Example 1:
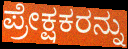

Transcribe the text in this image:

ಪ್ರೇಕ್ಷಕರನ್ನು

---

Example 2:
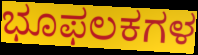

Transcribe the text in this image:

ಭೂಫಲಕಗಳ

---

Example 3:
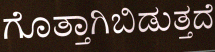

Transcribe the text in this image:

ಗೊತ್ತಾಗಿಬಿಡುತ್ತದೆ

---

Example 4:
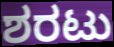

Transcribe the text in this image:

ಶರಟು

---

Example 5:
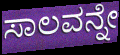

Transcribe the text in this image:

ಸಾಲವನ್ನೇ